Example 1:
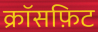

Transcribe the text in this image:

क्रॉसफ़िट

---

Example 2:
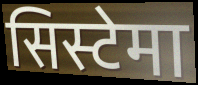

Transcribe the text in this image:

सिस्टेमा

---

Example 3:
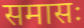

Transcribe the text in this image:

समासः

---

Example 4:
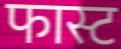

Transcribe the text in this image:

फास्ट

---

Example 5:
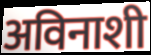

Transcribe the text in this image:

अविनाशी